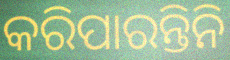
କରିପାରନ୍ତିନି